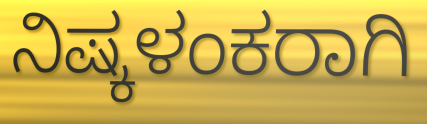
ನಿಷ್ಕಳಂಕರಾಗಿ